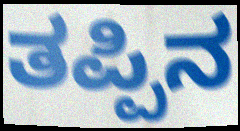
ತಪ್ಪಿನ